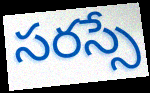
సరస్సే